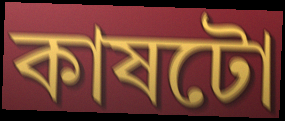
কাষটো